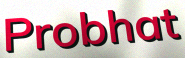
Probhat